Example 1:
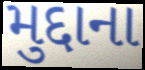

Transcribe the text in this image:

મુદ્દાના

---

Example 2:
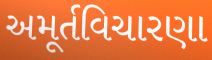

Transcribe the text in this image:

અમૂર્તવિચારણા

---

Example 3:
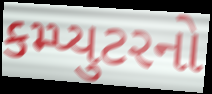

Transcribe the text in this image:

કમ્પ્યુટરનો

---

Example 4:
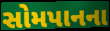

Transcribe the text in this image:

સોમપાનના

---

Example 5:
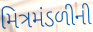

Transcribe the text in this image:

મિત્રમંડળીની